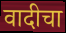
वादीचा